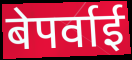
बेपर्वाई